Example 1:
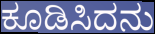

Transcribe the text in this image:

ಕೂಡಿಸಿದನು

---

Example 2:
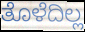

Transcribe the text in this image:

ತೊಳೆದಿಲ್ಲ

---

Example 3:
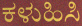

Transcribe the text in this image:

ಕಳುಹಿಸಿ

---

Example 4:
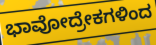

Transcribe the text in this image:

ಭಾವೋದ್ರೇಕಗಳಿಂದ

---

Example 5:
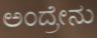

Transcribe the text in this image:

ಅಂದ್ರೇನು